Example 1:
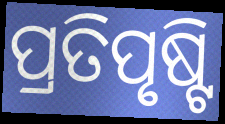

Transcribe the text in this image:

ପ୍ରତିପୃଷ୍ଟି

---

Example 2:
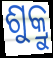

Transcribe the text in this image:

ଶୁକ୍ରୁ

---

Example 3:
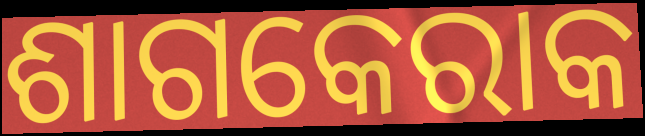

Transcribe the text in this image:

ଶାଗକେରାକ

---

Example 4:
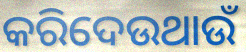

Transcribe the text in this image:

କରିଦେଉଥାଉଁ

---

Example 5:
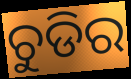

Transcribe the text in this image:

ଚୁଡିର